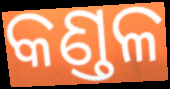
କଣ୍ଡଳ